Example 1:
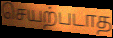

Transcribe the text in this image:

செயற்படாத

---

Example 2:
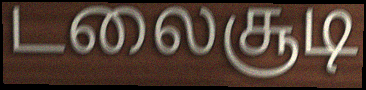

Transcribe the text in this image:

டலைசூடி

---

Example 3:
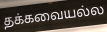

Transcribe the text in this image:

தக்கவையல்ல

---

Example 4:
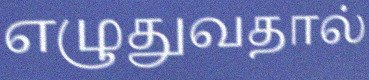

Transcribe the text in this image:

எழுதுவதால்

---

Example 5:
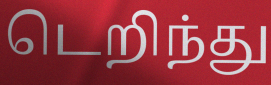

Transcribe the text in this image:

டெறிந்து